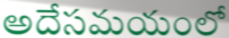
అదేసమయంలో